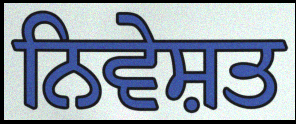
ਨਿਵੇਸ਼ਤ